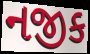
નજીક